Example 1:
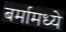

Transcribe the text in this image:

बर्मामध्ये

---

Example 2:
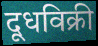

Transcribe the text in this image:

दूधविक्री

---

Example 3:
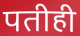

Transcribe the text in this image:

पतीही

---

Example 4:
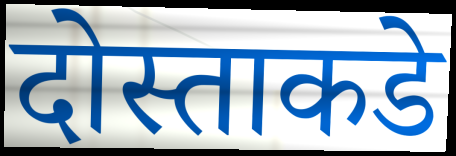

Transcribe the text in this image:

दोस्ताकडे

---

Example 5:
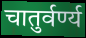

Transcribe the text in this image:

चातुर्वर्ण्य